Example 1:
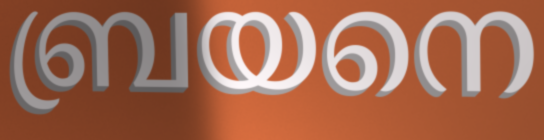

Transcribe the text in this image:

ബ്രയനെ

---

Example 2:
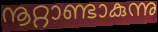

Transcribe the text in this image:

നൂറ്റാണ്ടാകുന്നു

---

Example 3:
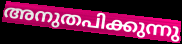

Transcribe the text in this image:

അനുതപിക്കുന്നു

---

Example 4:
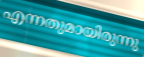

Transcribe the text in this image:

എന്നതുമായിരുന്നു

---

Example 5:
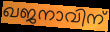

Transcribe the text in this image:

ഖജനാവിന്